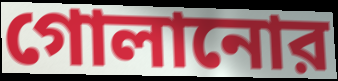
গোলানোর